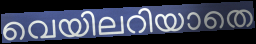
വെയിലറിയാതെ